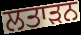
ਲਤਾੜਨ